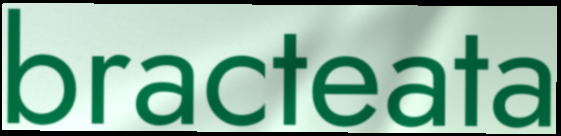
bracteata